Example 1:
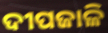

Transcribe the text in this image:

ଦୀପଜାଳି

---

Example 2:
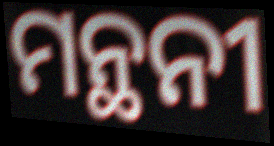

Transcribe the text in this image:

ମନ୍ଥନୀ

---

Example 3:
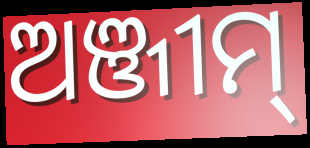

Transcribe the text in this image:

ଅଞ୍ଜୀମ୍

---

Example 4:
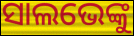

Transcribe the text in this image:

ସାଲଭେଙ୍କୁ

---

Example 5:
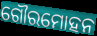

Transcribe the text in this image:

ଗୌରମୋହନ